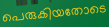
പെരുകിയതോടെ